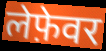
लेफ़ेवर